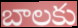
బాలకు